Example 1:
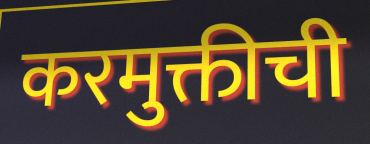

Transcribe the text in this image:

करमुक्तीची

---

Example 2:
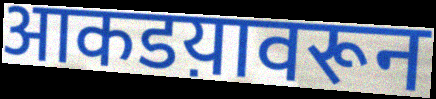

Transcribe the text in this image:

आकडय़ावरून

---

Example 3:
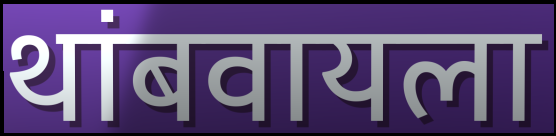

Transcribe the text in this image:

थांबवायला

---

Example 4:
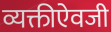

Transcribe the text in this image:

व्यक्तीऐवजी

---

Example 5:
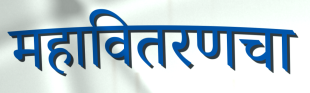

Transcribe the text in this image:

महावितरणचा